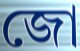
জো